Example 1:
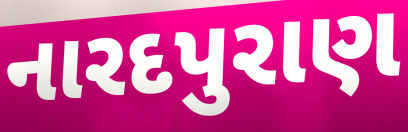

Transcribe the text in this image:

નારદપુરાણ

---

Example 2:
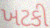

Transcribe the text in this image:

ખટકી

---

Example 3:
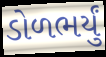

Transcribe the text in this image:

ડોળભર્યું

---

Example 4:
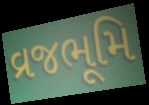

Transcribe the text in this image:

વ્રજભૂમિ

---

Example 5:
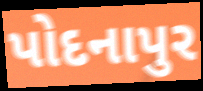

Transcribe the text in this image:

પોદનાપુર